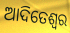
ଆଦିତେଶ୍ଵର